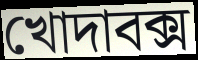
খোদাবক্স